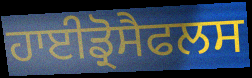
ਹਾਈਡ੍ਰੋਸੈਫਲਸ